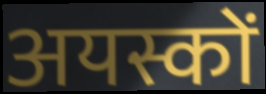
अयस्कों